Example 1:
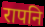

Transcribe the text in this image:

रापनि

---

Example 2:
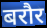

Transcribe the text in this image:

बरौर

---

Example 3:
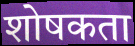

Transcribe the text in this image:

शोषकता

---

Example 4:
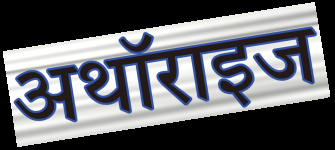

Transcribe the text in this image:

अथॉराइज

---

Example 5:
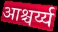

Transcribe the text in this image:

आश्चर्य्य